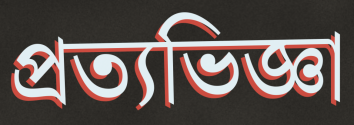
প্রত্যভিজ্ঞা